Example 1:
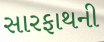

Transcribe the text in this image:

સારફાથની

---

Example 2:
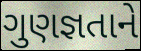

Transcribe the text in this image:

ગુણજ્ઞતાને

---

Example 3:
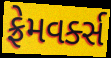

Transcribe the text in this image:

ફ્રેમવર્ક્સ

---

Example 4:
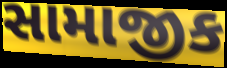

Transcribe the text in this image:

સામાજીક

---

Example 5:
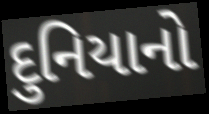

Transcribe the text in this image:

દુનિયાનો